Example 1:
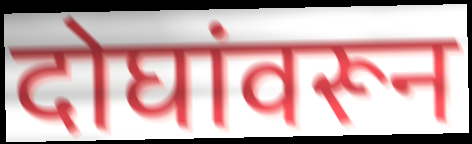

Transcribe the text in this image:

दोघांवरून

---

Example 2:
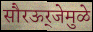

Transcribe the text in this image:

सौरऊर्जेमुळे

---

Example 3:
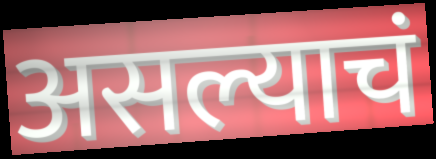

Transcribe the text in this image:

असल्याचं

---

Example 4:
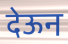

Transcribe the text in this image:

देऊन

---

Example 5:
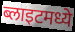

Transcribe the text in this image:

ब्लाइटमध्ये